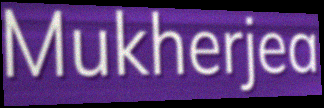
Mukherjea